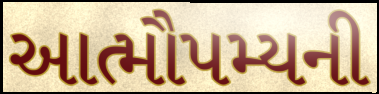
આત્મૌપમ્યની